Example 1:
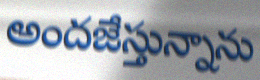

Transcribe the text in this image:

అందజేస్తున్నాను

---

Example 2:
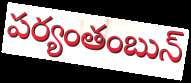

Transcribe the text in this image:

పర్యంతంబున్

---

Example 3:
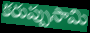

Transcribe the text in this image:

కరుప్పుసామి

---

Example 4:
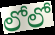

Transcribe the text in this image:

లోలో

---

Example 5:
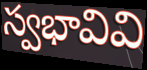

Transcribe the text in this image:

స్వభావివి